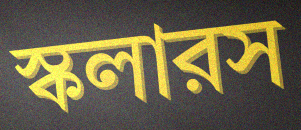
স্কলারস